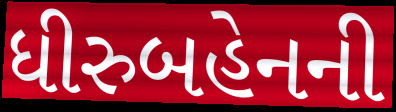
ધીરુબહેનની